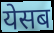
येसब